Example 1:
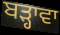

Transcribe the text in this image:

ਬੜ੍ਹਾਵਾ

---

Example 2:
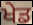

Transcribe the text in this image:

ਖੇਡ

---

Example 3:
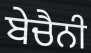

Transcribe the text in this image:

ਬੇਚੈਨੀ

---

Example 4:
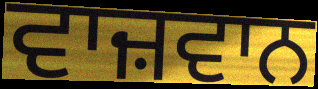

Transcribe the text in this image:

ਵਾਜ਼ਵਾਨ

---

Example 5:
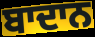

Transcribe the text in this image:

ਬਾਦਾਨ